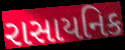
રાસાયનિક